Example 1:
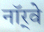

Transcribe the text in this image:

नॉर्वे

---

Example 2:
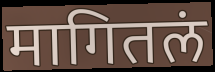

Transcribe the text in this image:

मागितलं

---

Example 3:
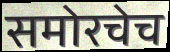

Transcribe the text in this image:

समोरचेच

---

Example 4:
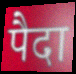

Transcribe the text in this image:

पैदा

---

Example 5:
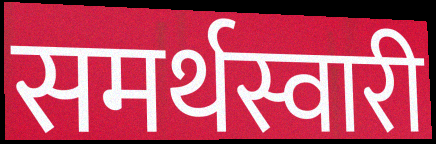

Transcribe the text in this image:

समर्थस्वारी